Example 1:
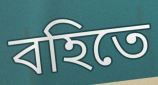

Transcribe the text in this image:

বহিতে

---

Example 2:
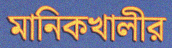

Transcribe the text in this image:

মানিকখালীর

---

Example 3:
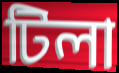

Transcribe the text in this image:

টিলা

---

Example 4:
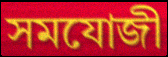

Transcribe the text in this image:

সমযোজী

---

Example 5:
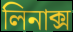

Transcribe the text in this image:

লিনাক্স